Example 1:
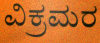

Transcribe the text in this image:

ವಿಕ್ರಮರ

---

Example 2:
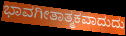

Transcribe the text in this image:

ಭಾವಗೀತಾತ್ಮಕವಾದುದು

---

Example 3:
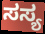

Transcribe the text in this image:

ಸಸ್ಯ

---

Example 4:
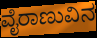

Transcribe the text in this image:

ವೈರಾಣುವಿನ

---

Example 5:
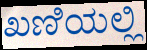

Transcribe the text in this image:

ಖಣಿಯಲ್ಲಿ